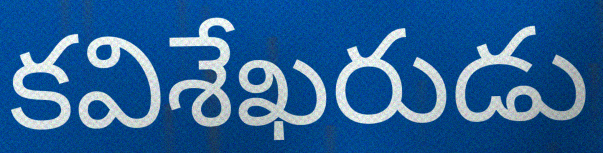
కవిశేఖరుడు